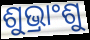
ଶୁଭ୍ରାଂଶୁ